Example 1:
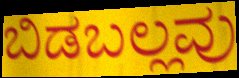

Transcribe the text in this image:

ಬಿಡಬಲ್ಲವು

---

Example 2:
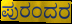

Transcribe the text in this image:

ಪುರಂದರ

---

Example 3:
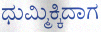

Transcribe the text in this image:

ಧುಮ್ಮಿಕ್ಕಿದಾಗ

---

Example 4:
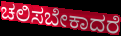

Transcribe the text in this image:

ಚಲಿಸಬೇಕಾದರೆ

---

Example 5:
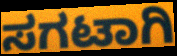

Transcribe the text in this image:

ಸಗಟಾಗಿ